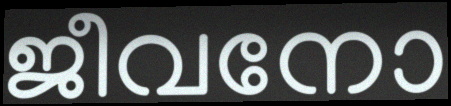
ജീവനോ